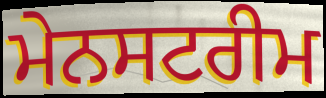
ਮੇਨਸਟਰੀਮ